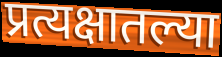
प्रत्यक्षातल्या